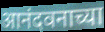
आनंदवनाच्या